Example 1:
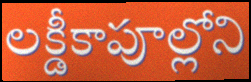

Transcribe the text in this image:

లక్డీకాపూల్లోని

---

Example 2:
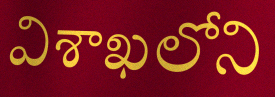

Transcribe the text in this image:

విశాఖలోని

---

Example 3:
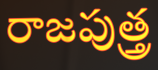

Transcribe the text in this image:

రాజపుత్త్ర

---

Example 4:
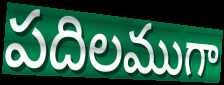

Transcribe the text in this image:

పదిలముగా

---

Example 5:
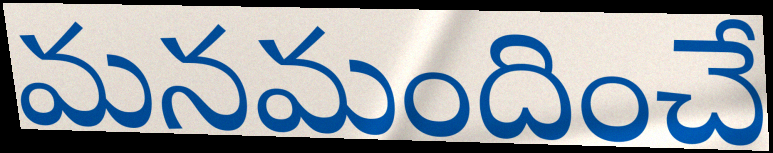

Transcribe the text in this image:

మనమందించే